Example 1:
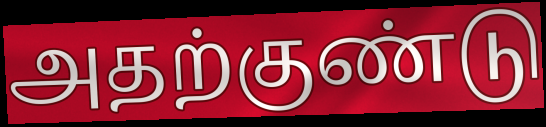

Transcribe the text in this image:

அதற்குண்டு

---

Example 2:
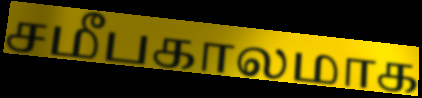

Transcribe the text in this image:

சமீபகாலமாக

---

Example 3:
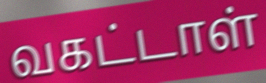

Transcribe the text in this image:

வகட்டாள்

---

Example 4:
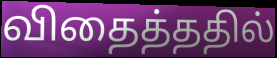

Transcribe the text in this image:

விதைத்ததில்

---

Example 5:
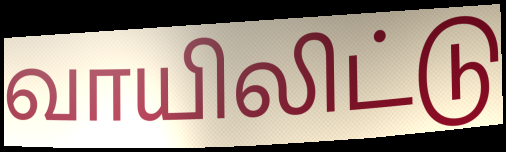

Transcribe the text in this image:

வாயிலிட்டு